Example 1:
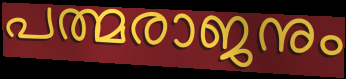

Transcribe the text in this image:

പത്മരാജനും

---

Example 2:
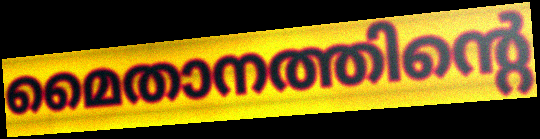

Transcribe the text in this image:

മൈതാനത്തിന്റെ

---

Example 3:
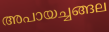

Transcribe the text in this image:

അപായച്ചങ്ങല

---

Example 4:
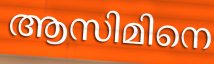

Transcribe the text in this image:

ആസിമിനെ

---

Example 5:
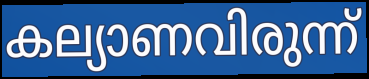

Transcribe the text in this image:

കല്യാണവിരുന്ന്